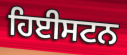
ਹਿਈਸਟਨ